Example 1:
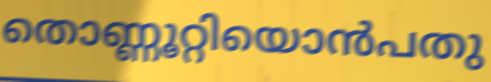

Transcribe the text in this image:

തൊണ്ണൂറ്റിയൊൻപതു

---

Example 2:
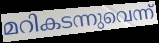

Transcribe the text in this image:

മറികടന്നുവെന്ന്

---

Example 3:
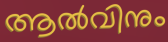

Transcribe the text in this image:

ആൽവിനും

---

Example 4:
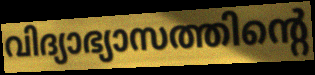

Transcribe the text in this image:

വിദ്യാഭ്യാസത്തിന്റെ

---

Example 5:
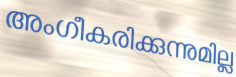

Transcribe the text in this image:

അംഗീകരിക്കുന്നുമില്ല